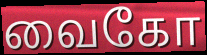
வைகோ